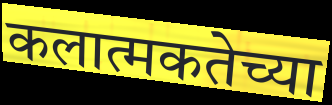
कलात्मकतेच्या